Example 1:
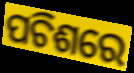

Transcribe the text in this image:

ପଚିଶରେ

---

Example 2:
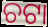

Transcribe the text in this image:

ଚଟା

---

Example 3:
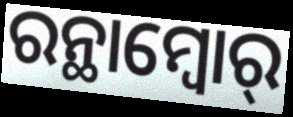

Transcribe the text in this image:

ରନ୍ଥାମ୍ବୋର୍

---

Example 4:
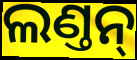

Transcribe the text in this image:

ଲଣ୍ତନ୍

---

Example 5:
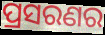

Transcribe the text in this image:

ପ୍ରସରଣର